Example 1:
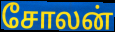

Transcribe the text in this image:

சோலன்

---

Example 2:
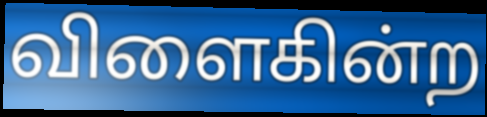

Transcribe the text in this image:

விளைகின்ற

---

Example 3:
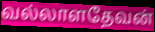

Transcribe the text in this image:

வல்லாளதேவன்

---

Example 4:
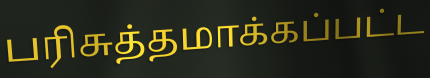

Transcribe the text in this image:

பரிசுத்தமாக்கப்பட்ட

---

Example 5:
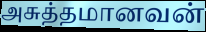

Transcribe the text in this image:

அசுத்தமானவன்